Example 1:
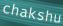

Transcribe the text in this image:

chakshu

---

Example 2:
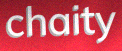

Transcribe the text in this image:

chaity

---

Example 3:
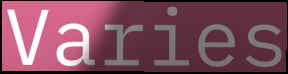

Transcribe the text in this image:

Varies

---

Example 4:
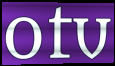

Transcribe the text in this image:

otu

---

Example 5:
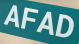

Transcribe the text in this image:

AFAD